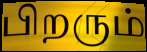
பிறரும்